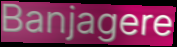
Banjagere